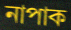
নাপাক